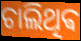
ଚାଲିଥିଵ